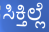
ಸಿಕ್ತಿಲ್ಲೆ